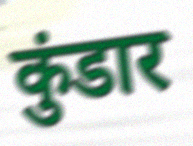
कुंडार